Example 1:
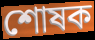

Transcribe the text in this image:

শোষক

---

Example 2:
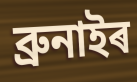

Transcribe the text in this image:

ব্ৰুনাইৰ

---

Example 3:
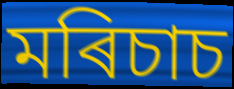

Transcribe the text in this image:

মৰিচাচ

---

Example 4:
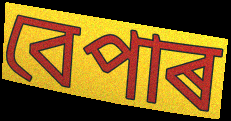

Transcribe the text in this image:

বেপাৰ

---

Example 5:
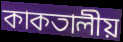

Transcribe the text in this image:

কাকতালীয়